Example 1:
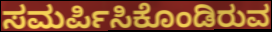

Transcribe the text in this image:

ಸಮರ್ಪಿಸಿಕೊಂಡಿರುವ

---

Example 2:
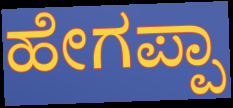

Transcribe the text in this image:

ಹೇಗಪ್ಪಾ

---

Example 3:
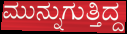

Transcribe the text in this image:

ಮುನ್ನುಗುತ್ತಿದ್ದ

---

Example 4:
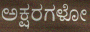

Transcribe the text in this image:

ಅಕ್ಷರಗಳೋ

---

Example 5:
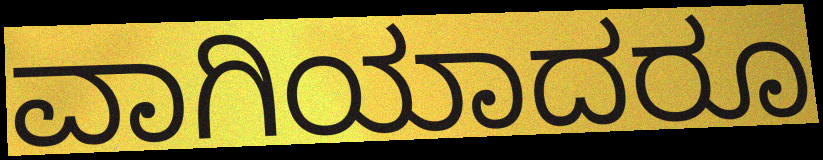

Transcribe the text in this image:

ವಾಗಿಯಾದರೂ